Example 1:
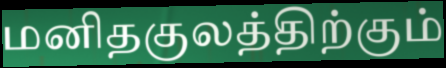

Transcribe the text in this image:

மனிதகுலத்திற்கும்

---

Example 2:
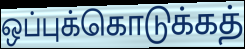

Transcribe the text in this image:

ஒப்புக்கொடுக்கத்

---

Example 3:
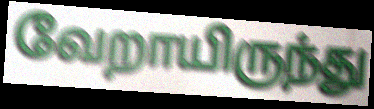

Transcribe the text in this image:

வேறாயிருந்து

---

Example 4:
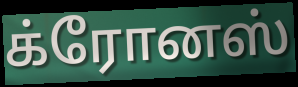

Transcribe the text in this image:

க்ரோனஸ்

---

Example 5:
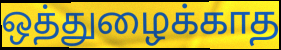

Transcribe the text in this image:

ஒத்துழைக்காத